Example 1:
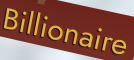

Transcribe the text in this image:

Billionaire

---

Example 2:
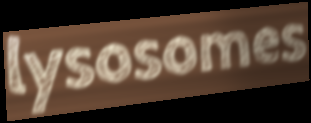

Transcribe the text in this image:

lysosomes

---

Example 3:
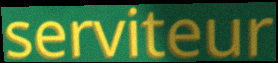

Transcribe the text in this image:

serviteur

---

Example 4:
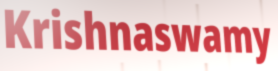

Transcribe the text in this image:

Krishnaswamy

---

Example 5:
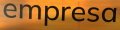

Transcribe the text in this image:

empresa